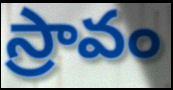
స్రావం